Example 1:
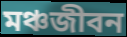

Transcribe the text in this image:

মঞ্চজীবন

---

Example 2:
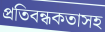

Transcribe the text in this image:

প্রতিবন্ধকতাসহ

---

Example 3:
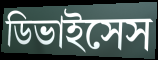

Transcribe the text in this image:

ডিভাইসেস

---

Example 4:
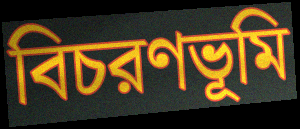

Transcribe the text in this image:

বিচরণভূমি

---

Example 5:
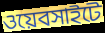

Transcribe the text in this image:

ওয়েবসাইটে